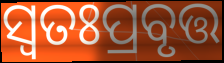
ସ୍ୱତଃପ୍ରବୃତ୍ତ